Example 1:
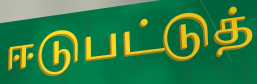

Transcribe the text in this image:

ஈடுபட்டுத்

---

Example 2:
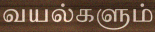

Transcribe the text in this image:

வயல்களும்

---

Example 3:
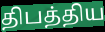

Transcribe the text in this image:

திபத்திய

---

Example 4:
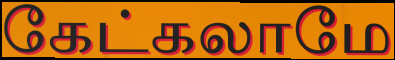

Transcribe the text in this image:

கேட்கலாமே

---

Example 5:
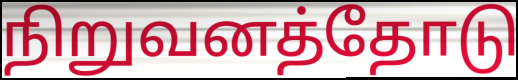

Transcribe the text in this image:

நிறுவனத்தோடு